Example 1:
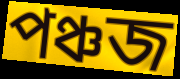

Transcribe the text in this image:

পঞ্চজ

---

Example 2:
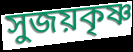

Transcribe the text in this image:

সুজয়কৃষ্ণ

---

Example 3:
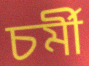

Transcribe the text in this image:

চর্মী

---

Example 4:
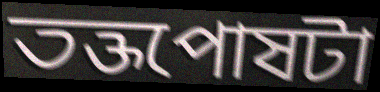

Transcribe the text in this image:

তক্তপোষটা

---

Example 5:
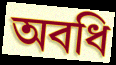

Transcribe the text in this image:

অবধি